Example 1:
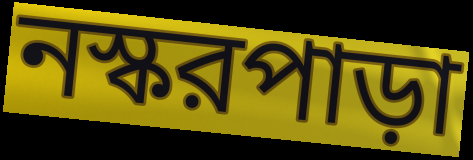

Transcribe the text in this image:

নস্করপাড়া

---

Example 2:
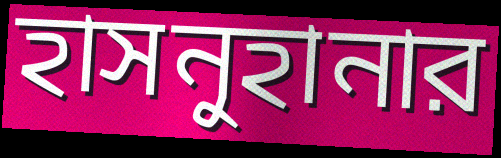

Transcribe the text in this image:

হাসনুহানার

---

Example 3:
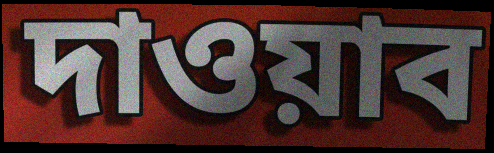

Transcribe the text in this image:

দাওয়াব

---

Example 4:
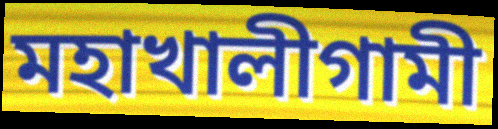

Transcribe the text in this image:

মহাখালীগামী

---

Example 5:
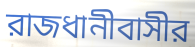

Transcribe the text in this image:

রাজধানীবাসীর